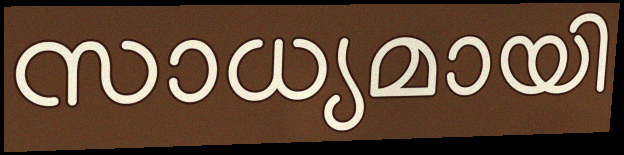
സാധ്യമായി